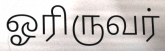
ஓரிருவர்